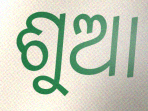
ଶୁଆ